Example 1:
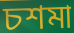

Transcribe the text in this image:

চশমা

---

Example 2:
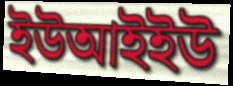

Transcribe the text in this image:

ইউআইইউ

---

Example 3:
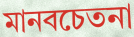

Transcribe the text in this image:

মানবচেতনা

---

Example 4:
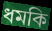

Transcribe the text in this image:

ধমকি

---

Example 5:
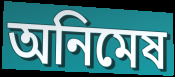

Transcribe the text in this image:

অনিমেষ